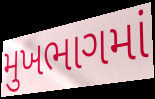
મુખભાગમાં